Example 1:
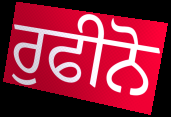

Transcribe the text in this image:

ਰੁਫੀਨੋ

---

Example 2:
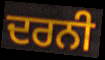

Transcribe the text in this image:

ਦਰਨੀ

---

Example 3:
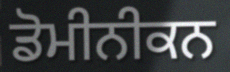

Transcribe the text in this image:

ਡੋਮੀਨੀਕਨ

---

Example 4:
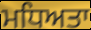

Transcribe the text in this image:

ਮਧਿਅਤਾ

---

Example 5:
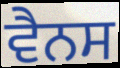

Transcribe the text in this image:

ਵੈਨਸ